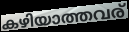
കഴിയാത്തവര്